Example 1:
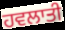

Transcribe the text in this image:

ਹਵਲਾਤੀ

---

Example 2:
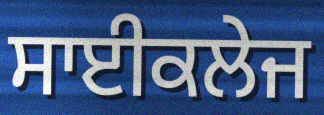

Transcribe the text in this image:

ਸਾਈਕਲੇਜ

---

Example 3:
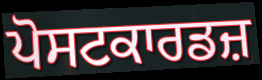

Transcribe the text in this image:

ਪੋਸਟਕਾਰਡਜ਼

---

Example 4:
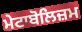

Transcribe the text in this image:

ਮੇਟਾਬੋਲਿਜ਼ਮ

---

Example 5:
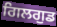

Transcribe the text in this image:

ਗਿਲਗੁਡ